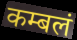
कम्बलं